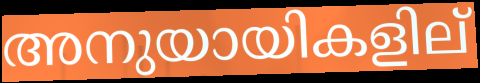
അനുയായികളില്